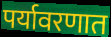
पर्यावरणात